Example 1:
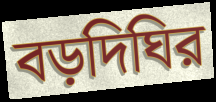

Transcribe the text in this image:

বড়দিঘির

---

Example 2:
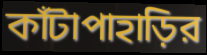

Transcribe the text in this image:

কাঁটাপাহাড়ির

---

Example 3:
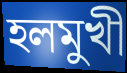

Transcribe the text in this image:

হলমুখী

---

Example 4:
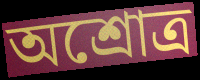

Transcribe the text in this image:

অশ্রোত্র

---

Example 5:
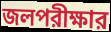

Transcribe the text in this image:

জলপরীক্ষার